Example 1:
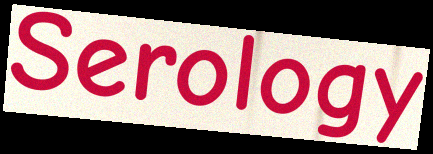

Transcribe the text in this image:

Serology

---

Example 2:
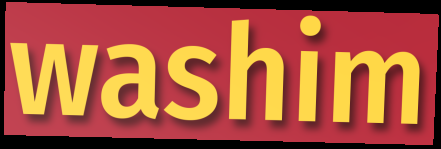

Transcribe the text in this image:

washim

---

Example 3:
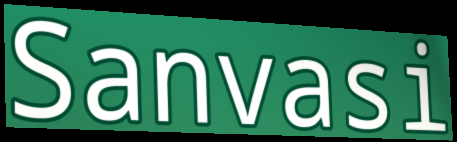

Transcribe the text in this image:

Sanvasi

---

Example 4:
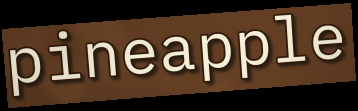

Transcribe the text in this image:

pineapple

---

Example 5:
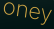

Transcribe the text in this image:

oney